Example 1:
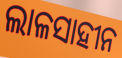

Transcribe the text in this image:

ଲାଳସାହୀନ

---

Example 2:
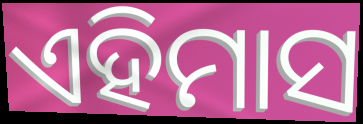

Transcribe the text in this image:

ଏହିମାସ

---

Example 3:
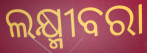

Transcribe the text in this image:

ଲକ୍ଷ୍ମୀବରା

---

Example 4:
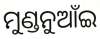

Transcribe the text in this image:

ମୁଣ୍ଡନୁଆଁଇ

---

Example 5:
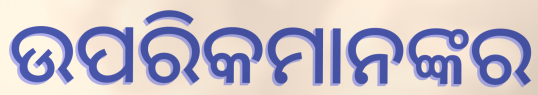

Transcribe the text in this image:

ଉପରିକମାନଙ୍କର